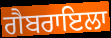
ਗੈਬਰਾਇਲਾ